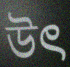
উৎ